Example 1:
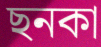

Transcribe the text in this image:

ছনকা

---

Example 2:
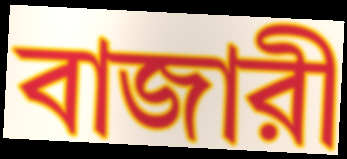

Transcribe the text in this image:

বাজারী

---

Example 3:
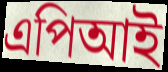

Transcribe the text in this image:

এপিআই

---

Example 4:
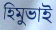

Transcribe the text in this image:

হিমুভাই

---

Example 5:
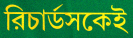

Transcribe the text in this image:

রিচার্ডসকেই